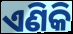
ଏଣିକି